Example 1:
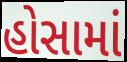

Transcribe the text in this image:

હોસામાં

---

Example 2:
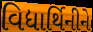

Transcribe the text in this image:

વિદ્યાર્થિનીને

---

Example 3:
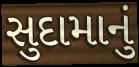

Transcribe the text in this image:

સુદામાનું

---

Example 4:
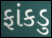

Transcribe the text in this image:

ફાંકડુ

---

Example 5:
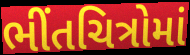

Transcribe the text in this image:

ભીંતચિત્રોમાં